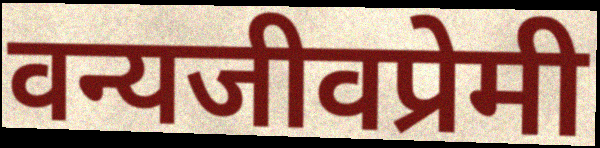
वन्यजीवप्रेमी